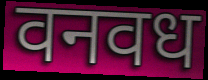
वनवध